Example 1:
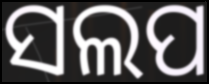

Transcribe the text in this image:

ସଲପ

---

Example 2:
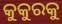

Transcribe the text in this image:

କୁକୁରକୁ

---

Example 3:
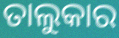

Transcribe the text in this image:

ତାଲୁକାର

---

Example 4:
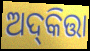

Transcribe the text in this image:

ଅଦ୍‌କିତ୍ତା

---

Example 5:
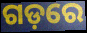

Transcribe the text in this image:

ଗଡ଼ରେ